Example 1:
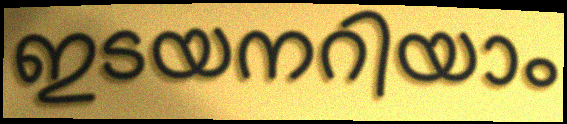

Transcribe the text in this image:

ഇടയനറിയാം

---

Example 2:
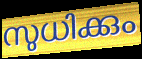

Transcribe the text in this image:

സുധിക്കും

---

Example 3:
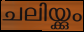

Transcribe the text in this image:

ചലിയ്ക്കും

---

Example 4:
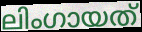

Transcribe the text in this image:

ലിംഗായത്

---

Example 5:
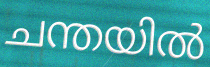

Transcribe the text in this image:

ചന്തയിൽ